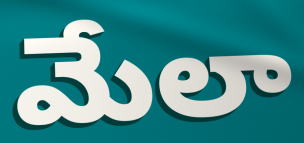
మేలా